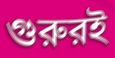
গুরুরই